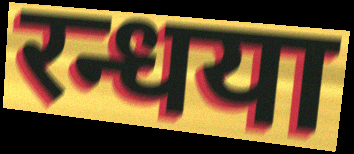
रन्धया